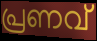
പ്രണവ്